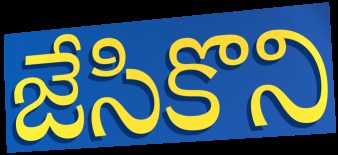
జేసికొని